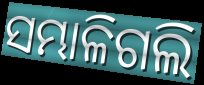
ସମ୍ଭାଳିଗଲି